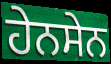
ਹੇਨਸੇਨ